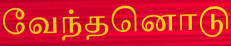
வேந்தனொடு